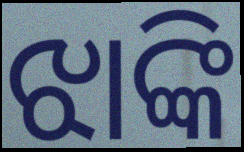
ଝାଙ୍କି